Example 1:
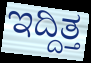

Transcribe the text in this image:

ಇದ್ದಿತ್ತ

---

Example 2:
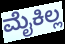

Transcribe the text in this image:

ಮೈಕಿಲ್ಲ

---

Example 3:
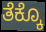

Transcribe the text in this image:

ತೆಕ್ಕೊ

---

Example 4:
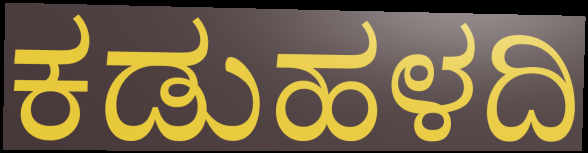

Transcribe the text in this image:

ಕಡುಹಳದಿ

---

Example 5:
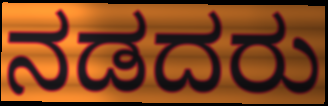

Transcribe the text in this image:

ನಡದರು